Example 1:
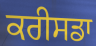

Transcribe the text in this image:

ਕਰੀਸਡਾ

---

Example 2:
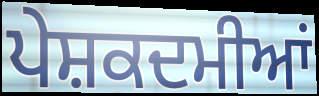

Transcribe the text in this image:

ਪੇਸ਼ਕਦਮੀਆਂ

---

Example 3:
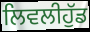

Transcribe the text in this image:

ਲਿਵਲੀਹੁੱਡ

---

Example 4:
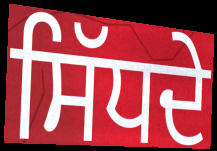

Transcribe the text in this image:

ਸਿੱਧਦੇ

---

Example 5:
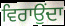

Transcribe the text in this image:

ਵਿਰਾਉਂਦਾ